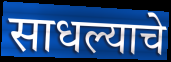
साधल्याचे